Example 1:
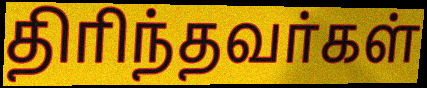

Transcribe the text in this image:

திரிந்தவர்கள்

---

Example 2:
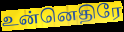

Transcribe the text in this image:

உன்னெதிரே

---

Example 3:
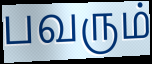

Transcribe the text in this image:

பவரும்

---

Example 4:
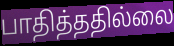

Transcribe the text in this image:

பாதித்ததில்லை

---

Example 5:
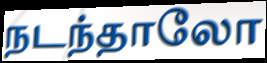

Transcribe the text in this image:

நடந்தாலோ